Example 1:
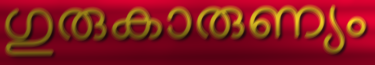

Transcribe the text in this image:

ഗുരുകാരുണ്യം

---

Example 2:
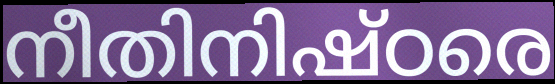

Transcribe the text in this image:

നീതിനിഷ്ഠരെ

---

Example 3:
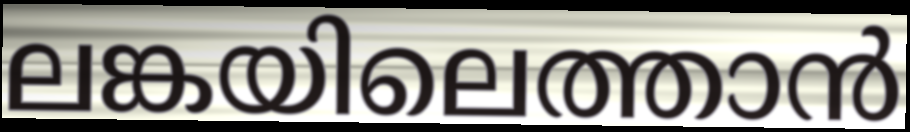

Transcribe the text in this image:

ലങ്കയിലെത്താൻ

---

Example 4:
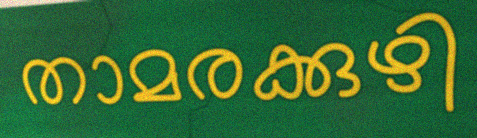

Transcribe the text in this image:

താമരക്കുഴി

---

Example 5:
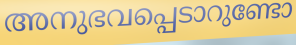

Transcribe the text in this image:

അനുഭവപ്പെടാറുണ്ടോ